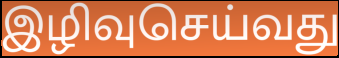
இழிவுசெய்வது